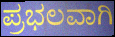
ಪ್ರಭಲವಾಗಿ